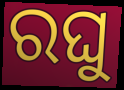
ରଘୁ